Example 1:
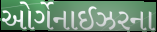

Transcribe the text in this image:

ઓર્ગેનાઈઝરના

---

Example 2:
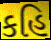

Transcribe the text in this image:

કહિ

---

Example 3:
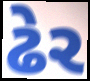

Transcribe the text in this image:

ઢેર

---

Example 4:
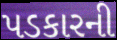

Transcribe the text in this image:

પડકારની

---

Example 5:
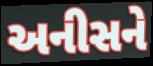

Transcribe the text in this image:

અનીસને